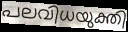
പലവിധയുക്തി